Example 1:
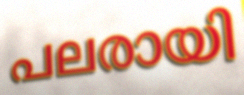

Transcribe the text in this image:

പലരായി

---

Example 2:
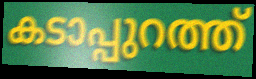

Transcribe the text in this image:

കടാപ്പുറത്ത്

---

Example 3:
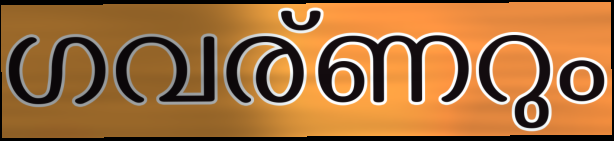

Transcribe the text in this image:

ഗവര്ണറും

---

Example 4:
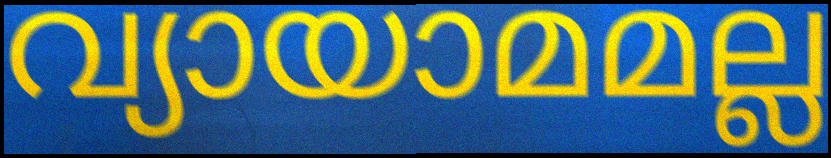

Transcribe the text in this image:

വ്യായാമമല്ല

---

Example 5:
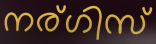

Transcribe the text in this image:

നര്ഗിസ്